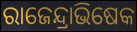
ରାଜେନ୍ଦ୍ରାଭିଷେକ